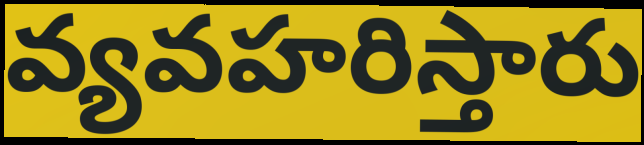
వ్యవహరిస్తారు